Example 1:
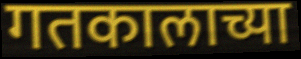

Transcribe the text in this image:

गतकालाच्या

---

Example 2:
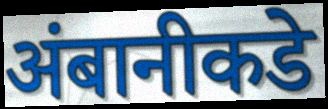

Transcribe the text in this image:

अंबानीकडे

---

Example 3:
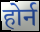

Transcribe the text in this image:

होर्न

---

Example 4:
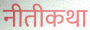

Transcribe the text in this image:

नीतीकथा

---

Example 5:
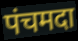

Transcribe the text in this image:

पंचमदा